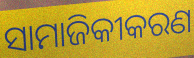
ସାମାଜିକୀକରଣ